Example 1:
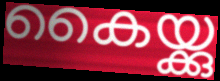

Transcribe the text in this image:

കൈയ്ക്കു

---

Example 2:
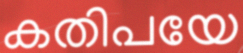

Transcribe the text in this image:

കതിപയേ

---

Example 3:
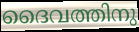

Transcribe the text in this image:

ദൈവത്തിനു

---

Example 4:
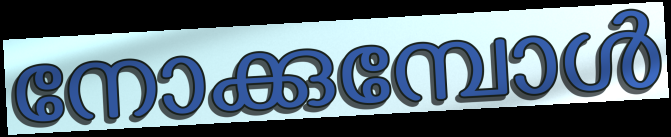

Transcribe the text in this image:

നോക്കുമ്പോൾ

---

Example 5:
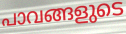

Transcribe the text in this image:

പാവങ്ങളുടെ